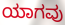
ಯಾಗವು